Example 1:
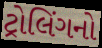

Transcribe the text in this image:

ટ્રોલિંગનો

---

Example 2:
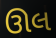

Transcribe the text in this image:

ઊલ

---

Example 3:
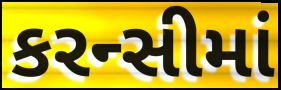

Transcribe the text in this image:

કરન્સીમાં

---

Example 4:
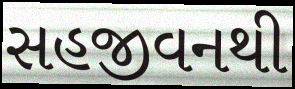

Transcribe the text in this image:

સહજીવનથી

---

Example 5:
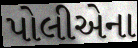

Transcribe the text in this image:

પોલીએના